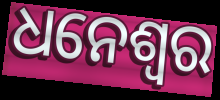
ଧନେଶ୍ବର